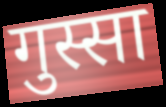
गुस्सा